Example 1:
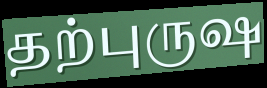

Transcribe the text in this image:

தற்புருஷ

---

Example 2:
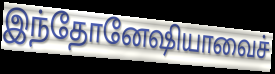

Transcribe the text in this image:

இந்தோனேஷியாவைச்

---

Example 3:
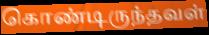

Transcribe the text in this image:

கொண்டிருந்தவள்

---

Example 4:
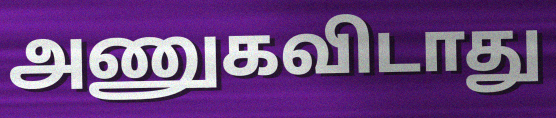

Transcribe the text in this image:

அணுகவிடாது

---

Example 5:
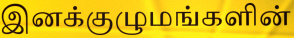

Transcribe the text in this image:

இனக்குழுமங்களின்